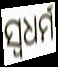
ସ୍ଵଧର୍ମ